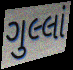
ગુલ્લાં